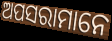
ଅପସରାମାନେ